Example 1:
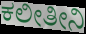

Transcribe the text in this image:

ಕಲೀತೀನಿ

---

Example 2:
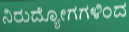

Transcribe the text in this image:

ನಿರುದ್ಯೋಗಗಳಿಂದ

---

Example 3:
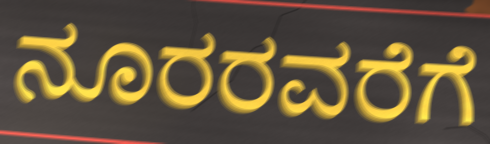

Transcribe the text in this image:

ನೂರರವರೆಗೆ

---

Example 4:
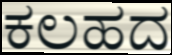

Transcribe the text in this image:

ಕಲಹದ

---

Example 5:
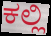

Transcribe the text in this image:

ಕಲ್ಲಿ